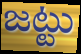
జట్టు